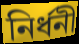
নির্ধনী